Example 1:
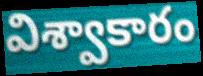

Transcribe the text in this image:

విశ్వాకారం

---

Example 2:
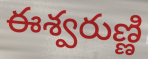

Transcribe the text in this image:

ఈశ్వరుణ్ణి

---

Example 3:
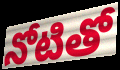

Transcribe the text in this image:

నోటితో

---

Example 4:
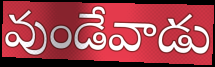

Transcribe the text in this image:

వుండేవాడు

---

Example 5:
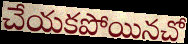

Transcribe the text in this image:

చేయకపోయినచో